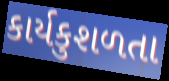
કાર્યકુશળતા